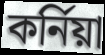
কর্নিয়া